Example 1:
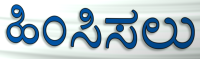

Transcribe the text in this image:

ಹಿಂಸಿಸಲು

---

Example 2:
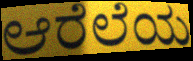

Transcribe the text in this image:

ಆರೆಲೆಯ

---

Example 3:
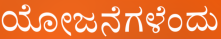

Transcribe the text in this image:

ಯೋಜನೆಗಳೆಂದು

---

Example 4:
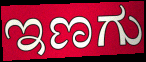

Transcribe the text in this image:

ಇಣಗು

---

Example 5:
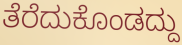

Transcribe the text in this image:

ತೆರೆದುಕೊಂಡದ್ದು